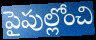
పైపుల్లోంచి